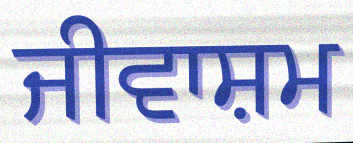
ਜੀਵਾਸ਼ਮ